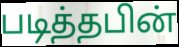
படித்தபின்